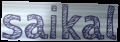
saikal